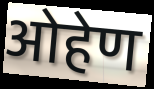
ओहेण